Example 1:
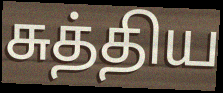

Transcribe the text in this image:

சுத்திய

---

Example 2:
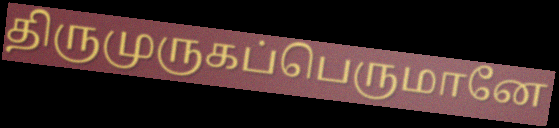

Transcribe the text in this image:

திருமுருகப்பெருமானே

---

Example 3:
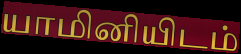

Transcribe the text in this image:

யாமினியிடம்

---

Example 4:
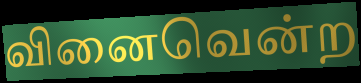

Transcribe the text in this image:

வினைவென்ற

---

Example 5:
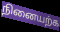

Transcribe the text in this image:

நினையற்க